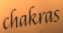
chakras